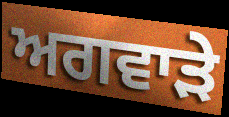
ਅਗਵਾੜੇ